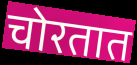
चोरतात